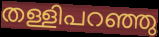
തള്ളിപറഞ്ഞു